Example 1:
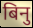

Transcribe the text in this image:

बिनु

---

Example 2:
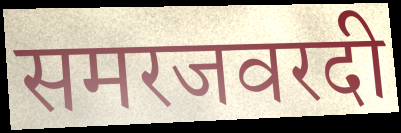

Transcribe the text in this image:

समरजवरदी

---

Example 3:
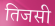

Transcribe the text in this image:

तिजसी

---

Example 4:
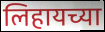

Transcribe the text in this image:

लिहायच्या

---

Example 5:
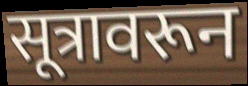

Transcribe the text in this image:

सूत्रावरून